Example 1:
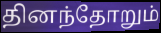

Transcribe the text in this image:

தினந்தோறும்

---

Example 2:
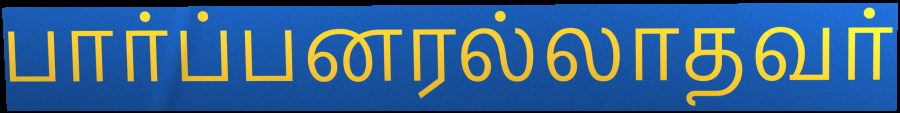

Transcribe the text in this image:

பார்ப்பனரல்லாதவர்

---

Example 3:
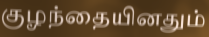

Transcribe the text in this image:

குழந்தையினதும்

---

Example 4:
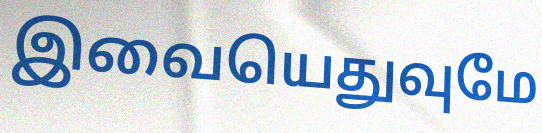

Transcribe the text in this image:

இவையெதுவுமே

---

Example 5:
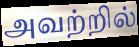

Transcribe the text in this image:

அவற்றில்